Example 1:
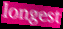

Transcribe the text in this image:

longest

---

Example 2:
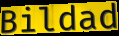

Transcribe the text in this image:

Bildad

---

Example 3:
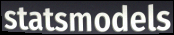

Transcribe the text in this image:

statsmodels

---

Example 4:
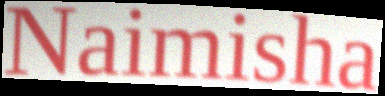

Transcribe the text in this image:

Naimisha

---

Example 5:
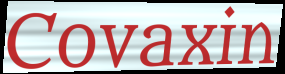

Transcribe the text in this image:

Covaxin